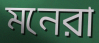
মনেরা